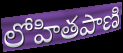
లోహితపాణి